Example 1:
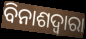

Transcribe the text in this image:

ବିନାଶଦ୍ଵାରା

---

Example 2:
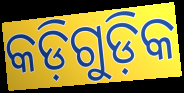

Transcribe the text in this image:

କଡ଼ିଗୁଡ଼ିକ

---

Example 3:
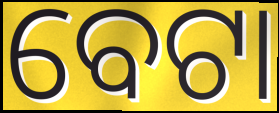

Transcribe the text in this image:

ବେଟା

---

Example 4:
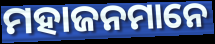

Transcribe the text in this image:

ମହାଜନମାନେ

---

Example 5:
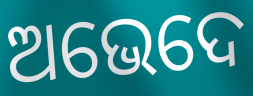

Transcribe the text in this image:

ଅଭେଦେ